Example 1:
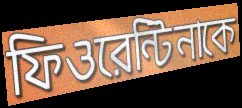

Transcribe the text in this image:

ফিওরেন্টিনাকে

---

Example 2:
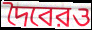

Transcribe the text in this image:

দৈবেরও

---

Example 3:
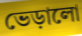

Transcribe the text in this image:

ভেড়ালো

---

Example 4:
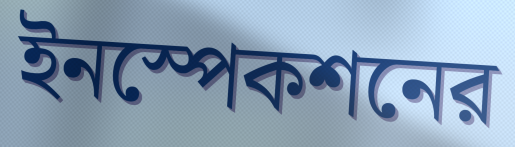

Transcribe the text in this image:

ইনস্পেকশনের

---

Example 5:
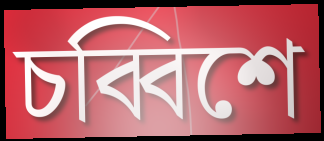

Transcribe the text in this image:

চব্বিশে